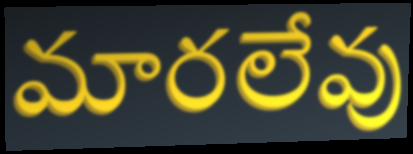
మారలేవు